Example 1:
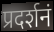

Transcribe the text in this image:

प्रदर्शनं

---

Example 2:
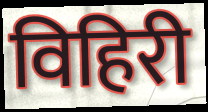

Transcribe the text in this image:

विहिरी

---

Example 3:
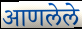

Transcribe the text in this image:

आणलेले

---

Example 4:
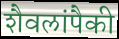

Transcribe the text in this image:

शैवलांपैकी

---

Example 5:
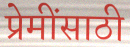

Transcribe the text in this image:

प्रेमींसाठी